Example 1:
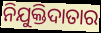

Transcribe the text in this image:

ନିଯୁକ୍ତିଦାତାର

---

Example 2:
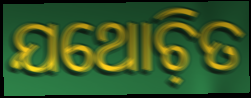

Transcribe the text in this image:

ଯଥୋଚ଼ିତ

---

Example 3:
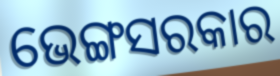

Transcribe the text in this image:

ଭେଙ୍ଗସରକାର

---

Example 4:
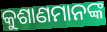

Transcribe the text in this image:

କୁଶାଣମାନଙ୍କ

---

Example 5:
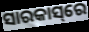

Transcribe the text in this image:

ସାରକାସ୍‌ରେ